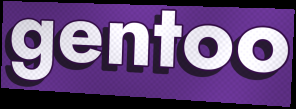
gentoo